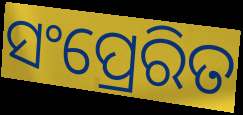
ସଂପ୍ରେରିତ